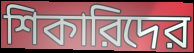
শিকারিদের